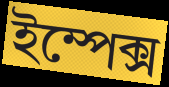
ইম্পেক্স